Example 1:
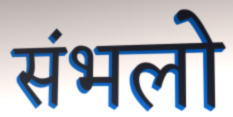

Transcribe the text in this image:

संभलो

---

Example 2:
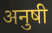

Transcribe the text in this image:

अनुषी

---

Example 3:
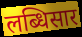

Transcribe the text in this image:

लब्धिसार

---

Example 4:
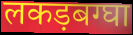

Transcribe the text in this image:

लकड़बग्घा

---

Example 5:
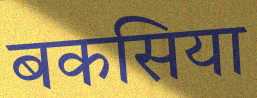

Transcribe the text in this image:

बकसिया